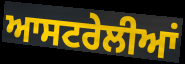
ਆਸਟਰੇਲੀਆਂ